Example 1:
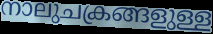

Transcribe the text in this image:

നാലുചക്രങ്ങളുള്ള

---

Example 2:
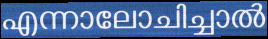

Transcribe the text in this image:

എന്നാലോചിച്ചാൽ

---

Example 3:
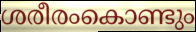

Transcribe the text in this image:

ശരീരംകൊണ്ടും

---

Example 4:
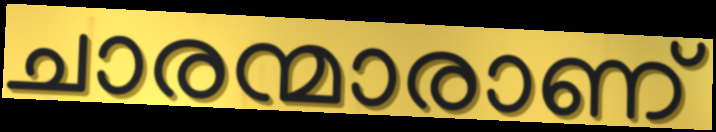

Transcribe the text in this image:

ചാരന്മാരാണ്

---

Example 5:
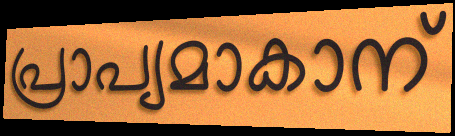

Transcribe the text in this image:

പ്രാപ്യമാകാന്